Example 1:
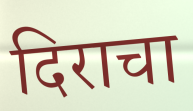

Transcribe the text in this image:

दिराचा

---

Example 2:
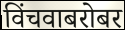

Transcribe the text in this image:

विंचवाबरोबर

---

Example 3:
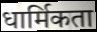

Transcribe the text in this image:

धार्मिकता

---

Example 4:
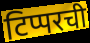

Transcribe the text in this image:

टिप्परची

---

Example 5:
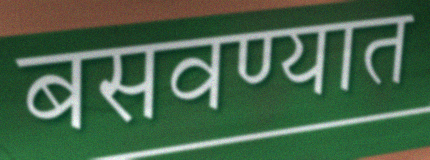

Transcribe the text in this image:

बसवण्यात